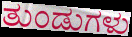
ತುಂಡುಗಳು